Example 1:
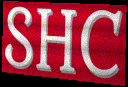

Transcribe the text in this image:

SHC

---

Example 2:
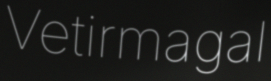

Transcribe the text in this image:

Vetirmagal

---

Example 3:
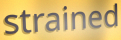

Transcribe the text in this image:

strained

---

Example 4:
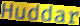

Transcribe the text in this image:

Huddar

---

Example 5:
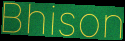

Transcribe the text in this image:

Bhison